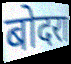
बोदरा